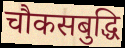
चौकसबुद्धि